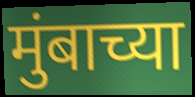
मुंबाच्या